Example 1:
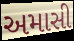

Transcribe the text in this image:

અમાસી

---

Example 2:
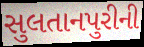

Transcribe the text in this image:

સુલતાનપુરીની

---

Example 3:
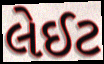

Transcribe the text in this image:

લેઈટ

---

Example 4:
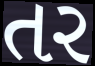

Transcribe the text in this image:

તર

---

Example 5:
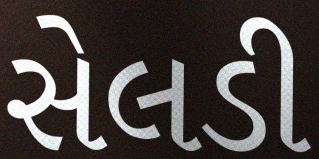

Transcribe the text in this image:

સેલડી